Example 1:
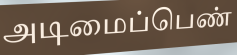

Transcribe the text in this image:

அடிமைப்பெண்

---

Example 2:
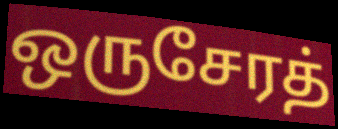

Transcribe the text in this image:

ஒருசேரத்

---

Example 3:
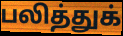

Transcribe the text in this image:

பலித்துக்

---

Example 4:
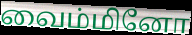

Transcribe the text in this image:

வைம்மினோ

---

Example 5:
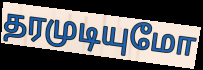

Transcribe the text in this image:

தரமுடியுமோ